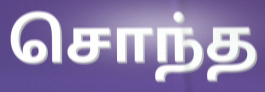
சொந்த